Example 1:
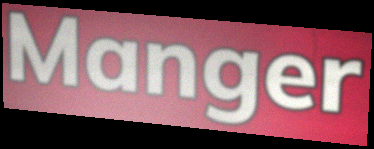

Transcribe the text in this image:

Manger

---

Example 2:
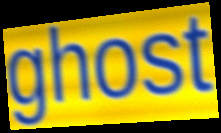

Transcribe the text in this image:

ghost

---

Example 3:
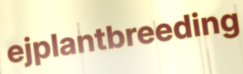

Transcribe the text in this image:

ejplantbreeding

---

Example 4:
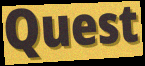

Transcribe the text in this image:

Quest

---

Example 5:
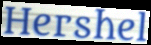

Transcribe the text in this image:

Hershel